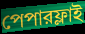
পেপারফ্লাই